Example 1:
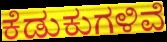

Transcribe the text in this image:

ಕೆಡುಕುಗಳಿವೆ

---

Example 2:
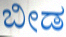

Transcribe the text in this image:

ಬೀಡ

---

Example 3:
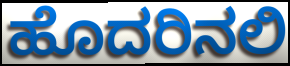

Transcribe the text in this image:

ಹೊದರಿನಲಿ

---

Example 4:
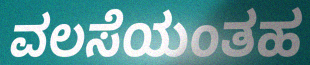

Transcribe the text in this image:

ವಲಸೆಯಂತಹ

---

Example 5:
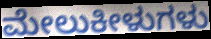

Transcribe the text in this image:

ಮೇಲುಕೀಳುಗಳು